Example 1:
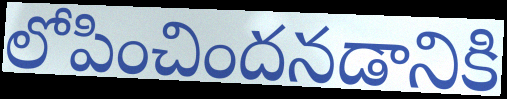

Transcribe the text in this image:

లోపించిందనడానికి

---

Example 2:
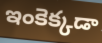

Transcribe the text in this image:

ఇంకెక్కడా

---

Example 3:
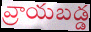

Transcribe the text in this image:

వ్రాయబడ్డ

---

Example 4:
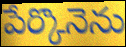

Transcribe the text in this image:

పేర్కొనెను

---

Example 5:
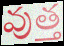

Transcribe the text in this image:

వుత్త